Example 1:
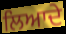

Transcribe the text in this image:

ਲਿਆਦੇ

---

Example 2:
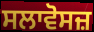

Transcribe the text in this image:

ਸਲਾਵੋਸਜ਼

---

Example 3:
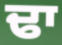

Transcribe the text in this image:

ਢਾ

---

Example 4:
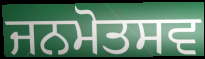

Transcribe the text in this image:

ਜਨਮੋਤਸਵ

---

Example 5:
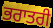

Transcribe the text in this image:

ਭਰਾਤਰੀ